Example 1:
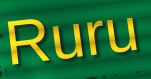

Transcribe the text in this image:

Ruru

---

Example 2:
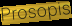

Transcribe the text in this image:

Prosopis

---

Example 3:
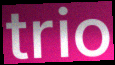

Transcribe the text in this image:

trio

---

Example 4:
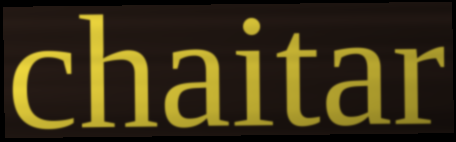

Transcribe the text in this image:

chaitar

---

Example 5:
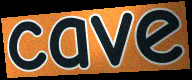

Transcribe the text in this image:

cave